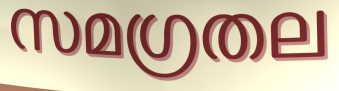
സമഗ്രതല